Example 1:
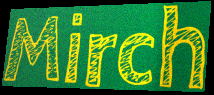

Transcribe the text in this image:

Mirch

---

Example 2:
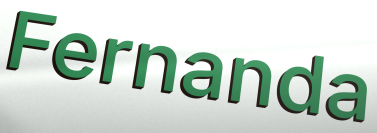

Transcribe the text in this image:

Fernanda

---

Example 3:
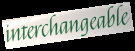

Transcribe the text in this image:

interchangeable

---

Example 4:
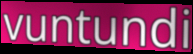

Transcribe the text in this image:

vuntundi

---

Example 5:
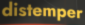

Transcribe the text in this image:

distemper